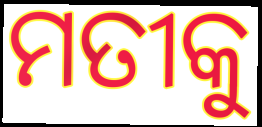
ମତୀକୁ